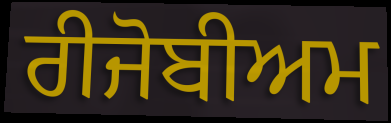
ਰੀਜੋਬੀਅਮ